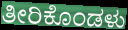
ತೀರಿಕೊಂಡಳು